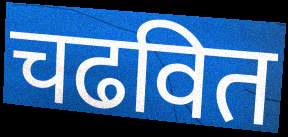
चढवित